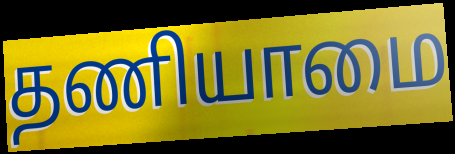
தணியாமை